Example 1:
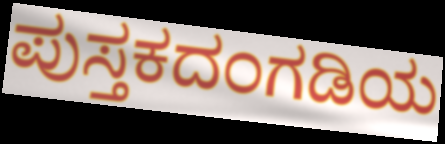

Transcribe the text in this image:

ಪುಸ್ತಕದಂಗಡಿಯ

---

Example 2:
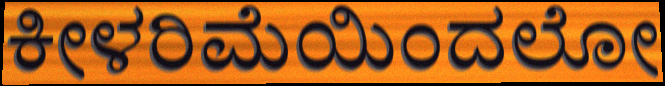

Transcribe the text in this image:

ಕೀಳರಿಮೆಯಿಂದಲೋ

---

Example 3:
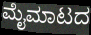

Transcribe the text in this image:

ಮೈಮಾಟದ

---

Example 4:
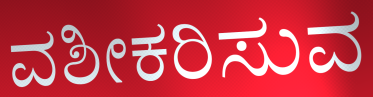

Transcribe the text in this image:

ವಶೀಕರಿಸುವ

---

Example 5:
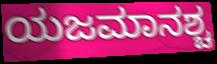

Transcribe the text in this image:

ಯಜಮಾನಶ್ಚ